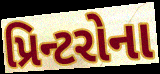
પ્રિન્ટરોના